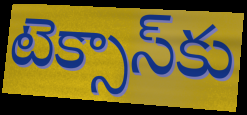
టెక్సాస్‌కు